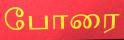
போரை